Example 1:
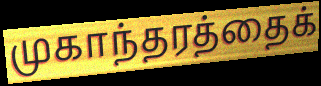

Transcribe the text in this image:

முகாந்தரத்தைக்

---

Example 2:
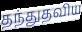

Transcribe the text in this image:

தந்துதவிய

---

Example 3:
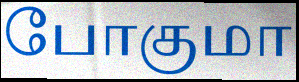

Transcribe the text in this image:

போகுமா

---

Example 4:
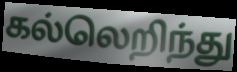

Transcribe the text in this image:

கல்லெறிந்து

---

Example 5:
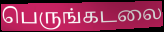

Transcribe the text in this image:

பெருங்கடலை